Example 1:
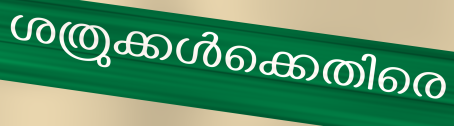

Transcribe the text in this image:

ശത്രുക്കൾക്കെതിരെ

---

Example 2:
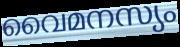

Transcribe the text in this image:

വൈമനസ്യം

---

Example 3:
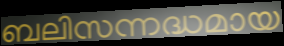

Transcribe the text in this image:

ബലിസന്നദ്ധമായ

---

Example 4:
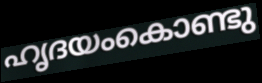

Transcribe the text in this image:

ഹൃദയംകൊണ്ടു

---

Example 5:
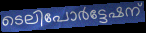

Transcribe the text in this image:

ടെലിപോർട്ടേഷന്